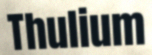
Thulium